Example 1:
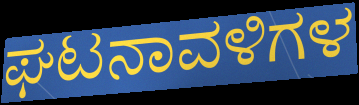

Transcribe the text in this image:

ಘಟನಾವಳಿಗಳ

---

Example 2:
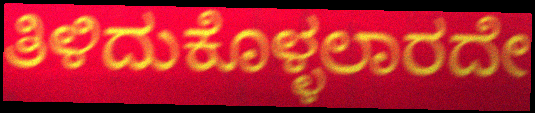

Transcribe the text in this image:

ತಿಳಿದುಕೊಳ್ಳಲಾರದೇ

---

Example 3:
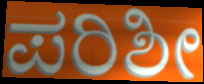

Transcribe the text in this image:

ಪರಿಶೀ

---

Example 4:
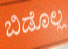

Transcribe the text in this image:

ಬಿಡೊಲ್ಲ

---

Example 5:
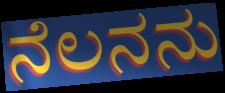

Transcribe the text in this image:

ನೆಲನನು